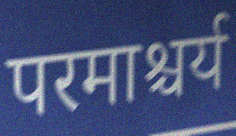
परमाश्चर्य